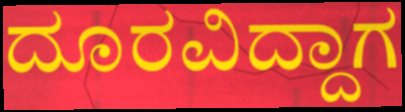
ದೂರವಿದ್ದಾಗ